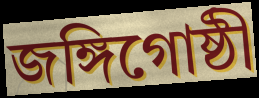
জঙ্গিগোষ্ঠী